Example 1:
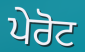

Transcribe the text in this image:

ਪੇਰੋਟ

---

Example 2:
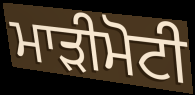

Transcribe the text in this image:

ਮਾੜੀਮੋਟੀ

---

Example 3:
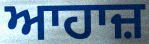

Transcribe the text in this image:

ਆਹਾਜ਼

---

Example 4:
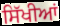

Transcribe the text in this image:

ਸਿੱਖੀਆਂ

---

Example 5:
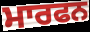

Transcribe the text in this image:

ਮਾਰਫਨ